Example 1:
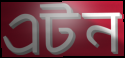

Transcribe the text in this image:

এটন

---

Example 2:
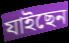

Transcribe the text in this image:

যাইছেন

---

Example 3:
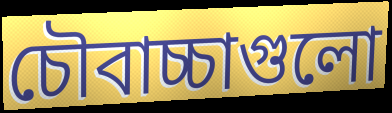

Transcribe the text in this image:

চৌবাচ্চাগুলো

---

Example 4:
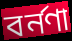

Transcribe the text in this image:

বর্নণা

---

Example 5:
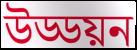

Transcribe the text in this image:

উড্ডয়ন